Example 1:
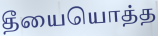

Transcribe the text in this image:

தீயையொத்த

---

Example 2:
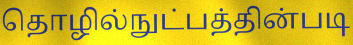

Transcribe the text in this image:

தொழில்நுட்பத்தின்படி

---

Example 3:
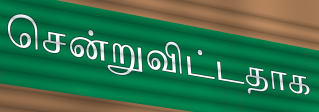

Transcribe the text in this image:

சென்றுவிட்டதாக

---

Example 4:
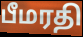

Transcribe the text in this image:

பீமரதி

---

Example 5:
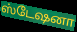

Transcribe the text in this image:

ஸ்டேஷனா